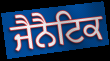
ਜੈਨੈਟਿਕ